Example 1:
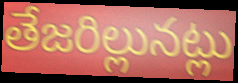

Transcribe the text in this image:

తేజరిల్లునట్లు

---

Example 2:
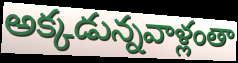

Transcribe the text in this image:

అక్కడున్నవాళ్లంతా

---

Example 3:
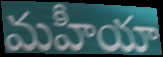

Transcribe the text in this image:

మహీయా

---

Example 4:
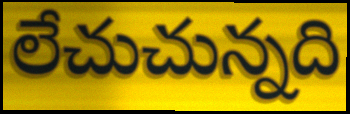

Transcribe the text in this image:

లేచుచున్నది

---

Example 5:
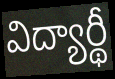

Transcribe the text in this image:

విద్యార్థీ